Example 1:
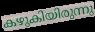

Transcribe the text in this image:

കഴുകിയിരുന്നു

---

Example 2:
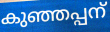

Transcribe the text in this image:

കുഞ്ഞപ്പന്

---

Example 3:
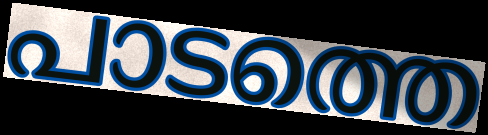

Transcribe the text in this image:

പാടത്തെ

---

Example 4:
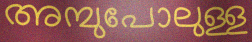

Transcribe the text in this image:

അമ്പുപോലുള്ള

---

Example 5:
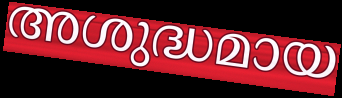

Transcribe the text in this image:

അശുദ്ധമായ